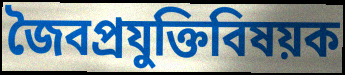
জৈবপ্রযুক্তিবিষয়ক